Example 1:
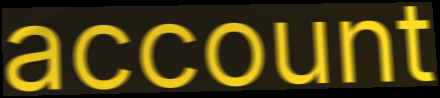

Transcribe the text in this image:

account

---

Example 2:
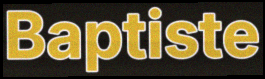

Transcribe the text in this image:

Baptiste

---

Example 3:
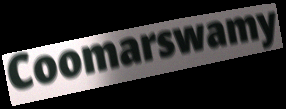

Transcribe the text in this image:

Coomarswamy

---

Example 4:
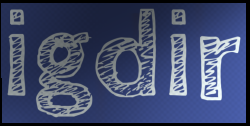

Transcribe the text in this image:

igdir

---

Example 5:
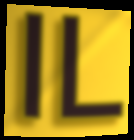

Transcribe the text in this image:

IL